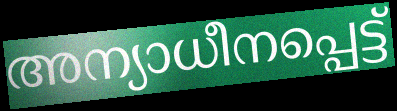
അന്യാധീനപ്പെട്ട്